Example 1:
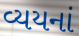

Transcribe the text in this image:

વ્યયનાં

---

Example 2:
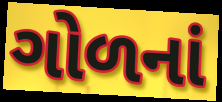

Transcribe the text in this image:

ગોળનાં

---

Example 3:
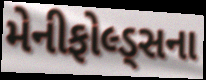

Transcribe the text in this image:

મેનીફોલ્ડ્સના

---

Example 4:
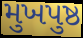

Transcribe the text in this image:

મુખપુષ્ઠ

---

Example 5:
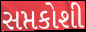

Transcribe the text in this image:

સપ્તકોશી